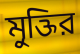
মুক্তির